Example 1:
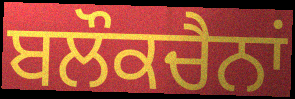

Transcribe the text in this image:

ਬਲੌਕਚੈਨਾਂ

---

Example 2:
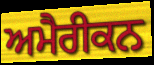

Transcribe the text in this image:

ਅਮੈਰੀਕਨ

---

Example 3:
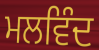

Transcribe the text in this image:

ਮਲਵਿੰਦ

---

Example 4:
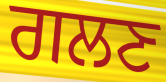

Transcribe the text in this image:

ਗਲਣ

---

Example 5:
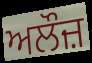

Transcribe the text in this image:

ਅਲੌਜ਼